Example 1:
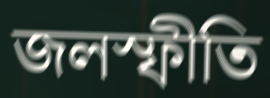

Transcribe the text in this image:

জলস্ফীতি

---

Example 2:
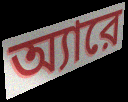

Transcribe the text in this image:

অ্যারে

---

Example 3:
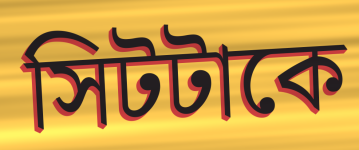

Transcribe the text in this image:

সিটটাকে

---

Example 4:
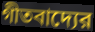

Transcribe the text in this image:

গীতবাদ্যের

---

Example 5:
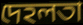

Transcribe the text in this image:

দেহলতা